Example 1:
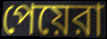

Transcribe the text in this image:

পেয়েরা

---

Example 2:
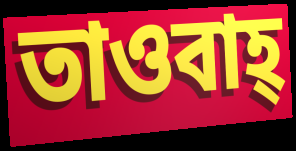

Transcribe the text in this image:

তাওবাহ্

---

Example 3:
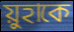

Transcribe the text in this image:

য়ুহাকে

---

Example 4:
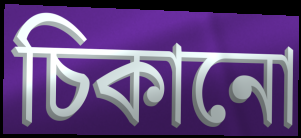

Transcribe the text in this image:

চিকানো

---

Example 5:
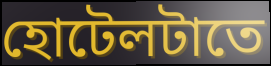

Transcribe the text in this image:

হোটেলটাতে